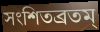
সংশিতব্রতম্